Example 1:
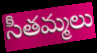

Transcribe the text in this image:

సీతమ్మలు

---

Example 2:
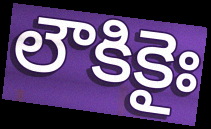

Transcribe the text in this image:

లౌకికైః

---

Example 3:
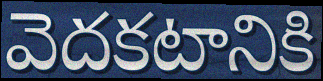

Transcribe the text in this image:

వెదకటానికి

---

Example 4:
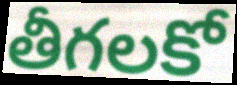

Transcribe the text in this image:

తీగలకో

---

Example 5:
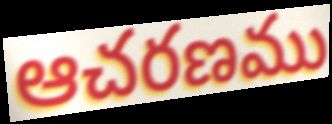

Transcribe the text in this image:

ఆచరణము